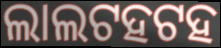
ଲାଲଟହଟହ